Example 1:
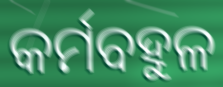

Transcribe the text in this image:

କର୍ମବହୁଳ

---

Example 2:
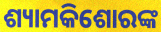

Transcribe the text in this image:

ଶ୍ୟାମକିଶୋରଙ୍କ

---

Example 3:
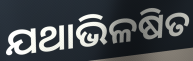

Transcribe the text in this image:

ଯଥାଭିଳଷିତ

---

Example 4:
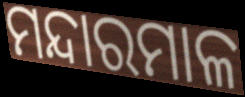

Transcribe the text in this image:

ମନ୍ଦାରମାଳ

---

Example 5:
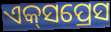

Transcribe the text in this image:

ଏକ୍‍ସପ୍ରେସ